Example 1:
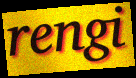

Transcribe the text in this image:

rengi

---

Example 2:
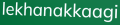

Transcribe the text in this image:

lekhanakkaagi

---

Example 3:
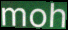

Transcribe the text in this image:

moh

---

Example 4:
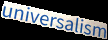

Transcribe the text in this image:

universalism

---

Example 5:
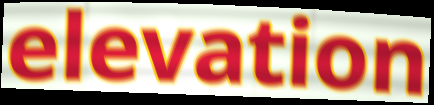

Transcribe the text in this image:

elevation